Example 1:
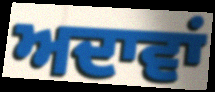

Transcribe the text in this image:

ਅਦਾਵਾਂ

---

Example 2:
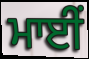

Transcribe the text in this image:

ਮਾਈਂ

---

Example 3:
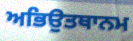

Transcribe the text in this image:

ਅਭਿਉਤਥਾਨਮ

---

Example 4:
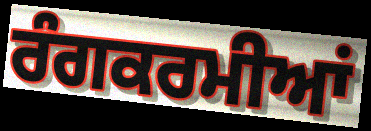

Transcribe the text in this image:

ਰੰਗਕਰਮੀਆਂ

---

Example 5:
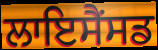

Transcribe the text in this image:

ਲਾਇਸੈਂਸਡ